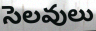
సెలవులు